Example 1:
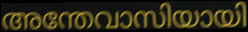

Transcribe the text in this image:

അന്തേവാസിയായി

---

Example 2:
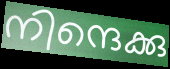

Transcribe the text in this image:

നിന്ദെക്കു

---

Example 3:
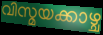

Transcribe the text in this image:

വിസ്മയക്കാഴ്ച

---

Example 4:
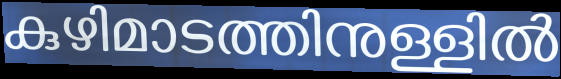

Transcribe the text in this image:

കുഴിമാടത്തിനുള്ളിൽ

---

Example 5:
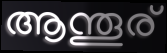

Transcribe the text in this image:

ആന്തൂര്